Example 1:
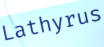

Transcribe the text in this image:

Lathyrus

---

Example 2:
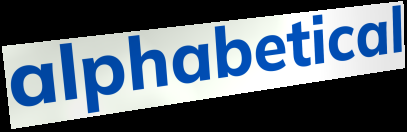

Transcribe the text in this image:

alphabetical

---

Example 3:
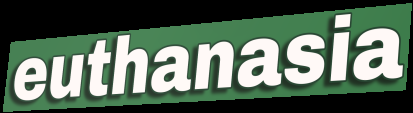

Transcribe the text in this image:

euthanasia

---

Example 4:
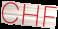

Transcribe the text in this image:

CHF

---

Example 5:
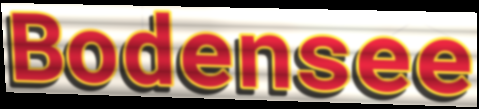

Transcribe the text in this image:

Bodensee